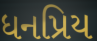
ધનપ્રિય